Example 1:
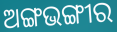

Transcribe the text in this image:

ଅଙ୍ଗଭଙ୍ଗୀର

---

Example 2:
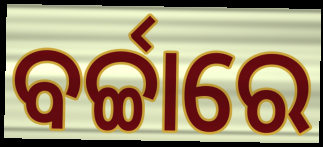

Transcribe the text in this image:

ବର୍ଚ୍ଚାରେ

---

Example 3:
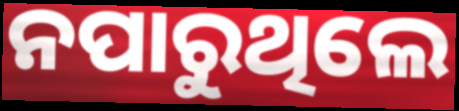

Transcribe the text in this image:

ନପାରୁଥିଲେ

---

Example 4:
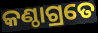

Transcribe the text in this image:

କଣ୍ଠାଗ୍ରତେ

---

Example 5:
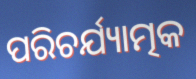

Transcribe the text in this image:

ପରିଚର୍ଯ୍ୟାତ୍ମକ